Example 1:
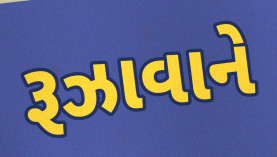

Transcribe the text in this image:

રૂઝાવાને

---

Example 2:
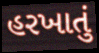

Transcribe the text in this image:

હરખાતું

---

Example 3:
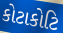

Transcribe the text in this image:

કોટાકોટિ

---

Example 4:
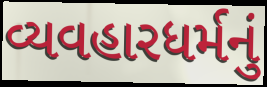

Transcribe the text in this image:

વ્યવહારધર્મનું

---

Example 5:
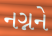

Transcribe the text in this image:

નગ્નને